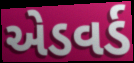
એડવર્ડ